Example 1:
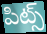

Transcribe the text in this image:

పిట్స్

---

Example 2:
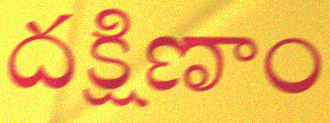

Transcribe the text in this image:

దక్షిణాం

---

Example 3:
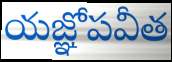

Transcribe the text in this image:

యజ్ఞోపవీత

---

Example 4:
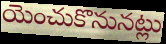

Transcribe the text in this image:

యెంచుకొనునట్లు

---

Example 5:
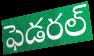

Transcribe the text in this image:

ఫెడరల్